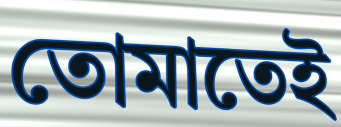
তোমাতেই